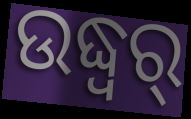
ଉଦ୍ଧ୍ୱର୍